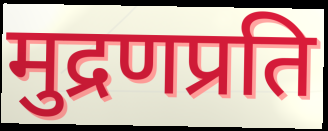
मुद्रणप्रति